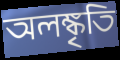
অলঙ্কৃতি